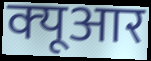
क्‍यूआर